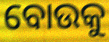
ବୋଉକୁ